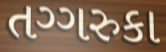
તગ્ગરુકા